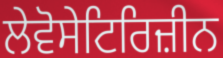
ਲੇਵੋਸੇਟਿਰਿਜ਼ੀਨ